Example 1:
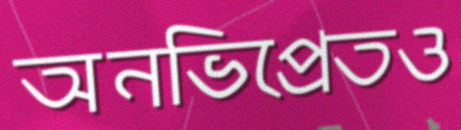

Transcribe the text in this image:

অনভিপ্রেতও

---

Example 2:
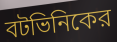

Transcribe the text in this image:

বটভিনিকের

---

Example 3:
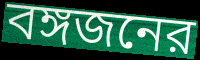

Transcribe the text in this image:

বঙ্গজনের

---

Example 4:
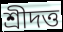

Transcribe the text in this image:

শ্রীদত্ত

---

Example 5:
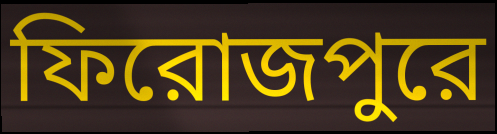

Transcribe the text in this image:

ফিরোজপুরে